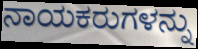
ನಾಯಕರುಗಳನ್ನು